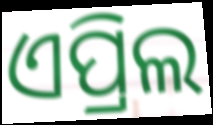
ଏପ୍ରିଲ